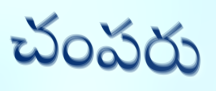
చంపరు